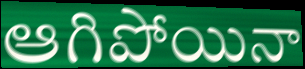
ఆగిపోయినా